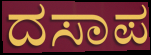
ದಸಾಪ